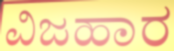
ವಿಜಹಾರ